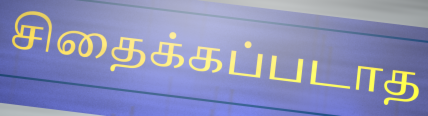
சிதைக்கப்படாத